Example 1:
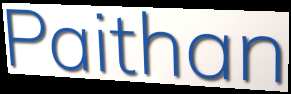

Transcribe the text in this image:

Paithan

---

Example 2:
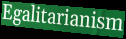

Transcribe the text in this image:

Egalitarianism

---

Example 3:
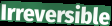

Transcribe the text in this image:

Irreversible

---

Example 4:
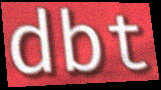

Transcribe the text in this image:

dbt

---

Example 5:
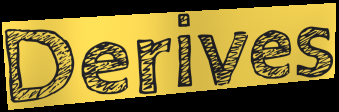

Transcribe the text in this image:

Derives